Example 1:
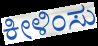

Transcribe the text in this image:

ಕೀಳಿಂಸು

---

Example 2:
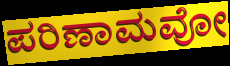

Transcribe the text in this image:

ಪರಿಣಾಮವೋ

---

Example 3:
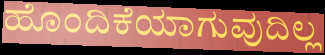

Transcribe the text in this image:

ಹೊಂದಿಕೆಯಾಗುವುದಿಲ್ಲ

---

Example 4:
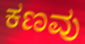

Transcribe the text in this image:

ಕಣವು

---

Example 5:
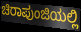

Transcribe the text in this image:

ಚಿರಾಪುಂಜಿಯಲ್ಲಿ